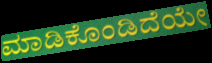
ಮಾಡಿಕೊಂಡಿದೆಯೇ